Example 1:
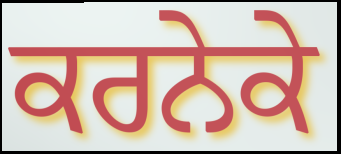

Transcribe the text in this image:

ਕਰਨੇਕੇ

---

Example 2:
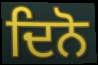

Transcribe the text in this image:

ਦਿਨੋ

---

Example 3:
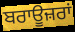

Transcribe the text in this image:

ਬਰਾਊਜ਼ਰਾਂ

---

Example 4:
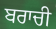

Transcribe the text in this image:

ਬਰਾਚੀ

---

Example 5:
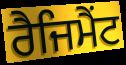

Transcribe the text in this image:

ਰੈਜਿਮੈਂਟ